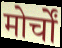
मोर्चों